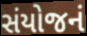
સંયોજનં